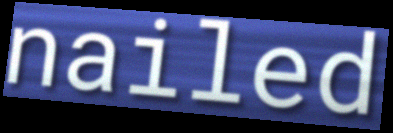
nailed